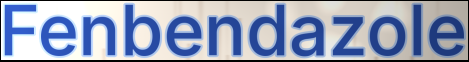
Fenbendazole